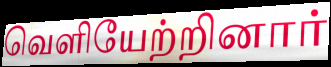
வெளியேற்றினார்